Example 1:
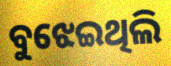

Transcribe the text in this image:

ବୁଝେଇଥିଲି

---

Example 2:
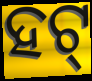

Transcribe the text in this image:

ହଟ୍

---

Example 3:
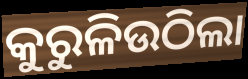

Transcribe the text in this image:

କୁରୁଳିଉଠିଲା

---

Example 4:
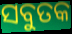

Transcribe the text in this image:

ସବୁତକ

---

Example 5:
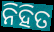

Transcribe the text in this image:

ନିହିତ